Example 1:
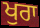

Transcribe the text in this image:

ਖੁਰਾ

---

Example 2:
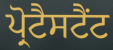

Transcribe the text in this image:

ਪ੍ਰੋਟੈਸਟੈਂਟ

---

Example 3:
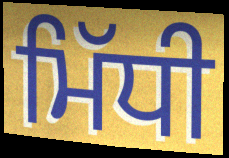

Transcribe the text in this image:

ਮਿੱਧੀ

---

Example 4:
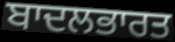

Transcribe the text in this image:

ਬਾਦਲਭਾਰਤ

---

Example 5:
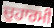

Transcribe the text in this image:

ਚੁਹਾਰਮੀ